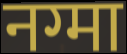
नग्मा